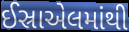
ઈસ્રાએલમાંથી